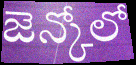
జెన్కోలో